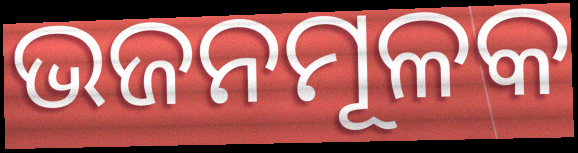
ଭଜନମୂଳକ